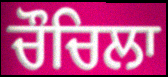
ਚੌਚਿਲਾ